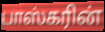
பாஸ்கரின்